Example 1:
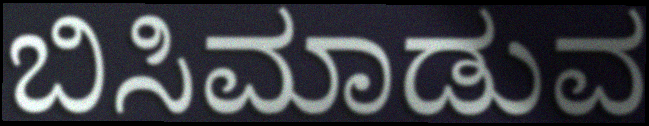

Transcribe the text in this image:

ಬಿಸಿಮಾಡುವ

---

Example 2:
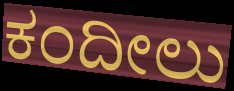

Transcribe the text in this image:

ಕಂದೀಲು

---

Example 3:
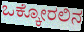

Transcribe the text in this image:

ಒಕ್ಕೋರಲಿನ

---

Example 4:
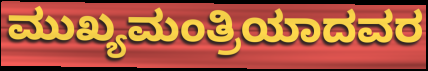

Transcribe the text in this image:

ಮುಖ್ಯಮಂತ್ರಿಯಾದವರ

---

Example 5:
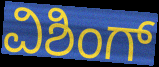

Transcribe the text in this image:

ವಿಶಿಂಗ್